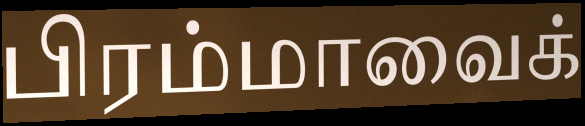
பிரம்மாவைக்